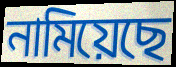
নামিয়েছে